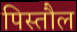
पिस्तौल